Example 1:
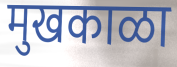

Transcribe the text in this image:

मुखकाळा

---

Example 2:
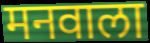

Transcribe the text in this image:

मनवाला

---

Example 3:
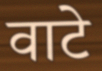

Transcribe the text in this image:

वाटे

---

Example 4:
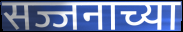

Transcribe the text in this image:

सज्जनाच्या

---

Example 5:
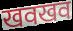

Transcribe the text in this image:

खवखव